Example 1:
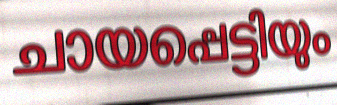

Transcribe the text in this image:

ചായപ്പെട്ടിയും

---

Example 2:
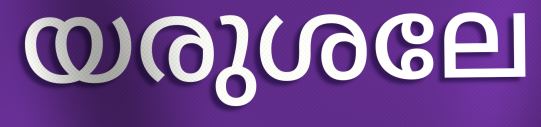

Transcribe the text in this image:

യരുശലേ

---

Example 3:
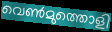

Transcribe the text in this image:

വെൺമുത്തൊളി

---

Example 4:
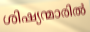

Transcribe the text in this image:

ശിഷ്യന്മാരിൽ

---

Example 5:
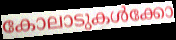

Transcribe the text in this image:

കോലാടുകൾക്കോ